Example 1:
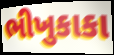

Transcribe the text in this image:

ભીખુકાકા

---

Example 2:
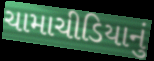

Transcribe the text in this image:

ચામાચીડિયાનું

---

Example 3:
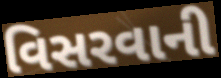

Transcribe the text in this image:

વિસરવાની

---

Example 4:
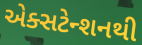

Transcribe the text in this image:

એક્સટેન્શનથી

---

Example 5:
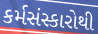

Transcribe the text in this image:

કર્મસંસ્કારોથી